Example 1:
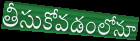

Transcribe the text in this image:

తీసుకోవడంలోనూ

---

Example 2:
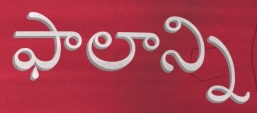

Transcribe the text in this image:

ఫాలాన్ని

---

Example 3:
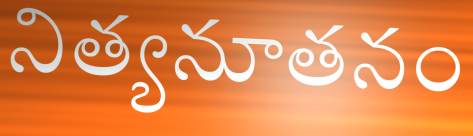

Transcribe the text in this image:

నిత్యనూతనం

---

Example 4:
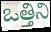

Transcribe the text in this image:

ఒత్తిని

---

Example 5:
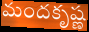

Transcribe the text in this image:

మందకృష్ణ